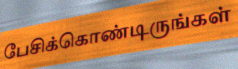
பேசிக்கொண்டிருங்கள்